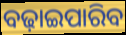
ବଢ଼ାଇପାରିବ